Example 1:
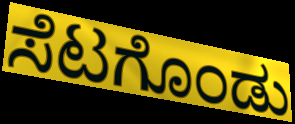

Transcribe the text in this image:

ಸೆಟಗೊಂಡು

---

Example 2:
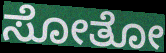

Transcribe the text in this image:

ಸೋತೋ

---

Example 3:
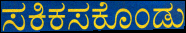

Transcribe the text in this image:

ಸಕಿಕಸಕೊಂಡು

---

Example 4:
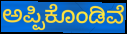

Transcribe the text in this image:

ಅಪ್ಪಿಕೊಂಡಿವೆ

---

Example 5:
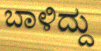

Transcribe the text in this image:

ಬಾಳಿದ್ದು